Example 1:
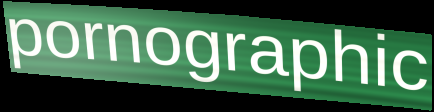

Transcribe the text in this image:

pornographic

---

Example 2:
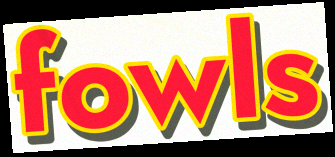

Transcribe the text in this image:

fowls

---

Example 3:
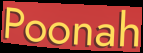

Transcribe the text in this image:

Poonah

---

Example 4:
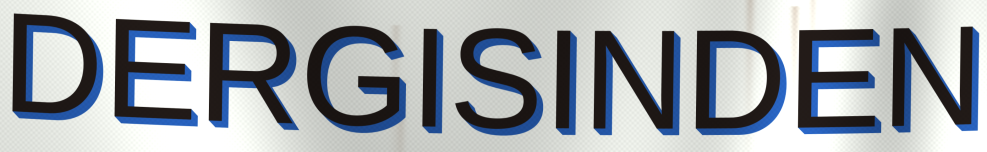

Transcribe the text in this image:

DERGISINDEN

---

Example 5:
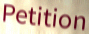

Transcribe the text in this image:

Petition